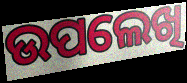
ଉପଲେଖି